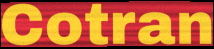
Cotran